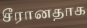
சீரானதாக